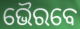
ଭୈରବେ